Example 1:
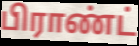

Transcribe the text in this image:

பிராண்ட்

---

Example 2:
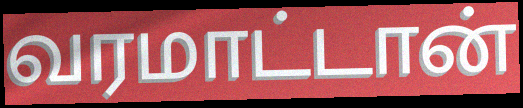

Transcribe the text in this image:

வரமாட்டான்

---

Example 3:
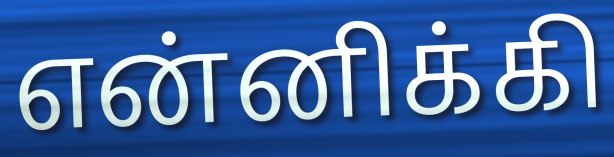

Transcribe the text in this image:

என்னிக்கி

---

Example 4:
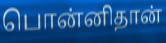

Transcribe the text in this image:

பொன்னிதான்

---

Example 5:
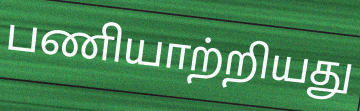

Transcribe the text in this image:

பணியாற்றியது